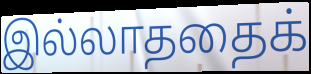
இல்லாததைக்